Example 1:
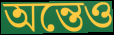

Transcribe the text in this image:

অন্তেও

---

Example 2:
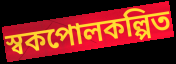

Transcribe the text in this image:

স্বকপোলকল্পিত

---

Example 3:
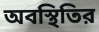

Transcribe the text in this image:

অবস্থিতির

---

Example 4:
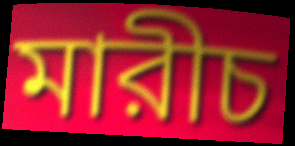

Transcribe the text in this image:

মারীচ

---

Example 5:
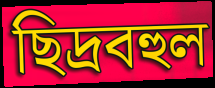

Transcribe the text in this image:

ছিদ্রবহুল